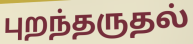
புறந்தருதல்